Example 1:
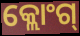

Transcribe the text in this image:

କ୍ଲୋଂଗ୍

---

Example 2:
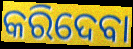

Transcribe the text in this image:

କରିଦେବା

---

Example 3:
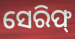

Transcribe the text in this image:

ସେରିଫ୍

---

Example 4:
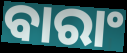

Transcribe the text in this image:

ବାରାଂ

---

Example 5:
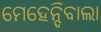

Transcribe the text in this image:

ମେହେନ୍ଦିବାଲା